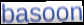
basoon